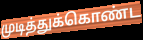
முடித்துக்கொண்ட